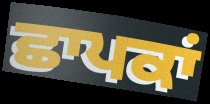
ਛਾਪਕਾਂ